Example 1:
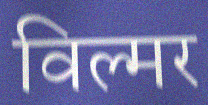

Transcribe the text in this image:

विल्मर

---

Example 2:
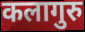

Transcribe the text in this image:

कलागुरु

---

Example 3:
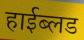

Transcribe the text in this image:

हाईब्लड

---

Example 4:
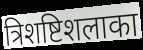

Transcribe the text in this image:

त्रिशष्टिशलाका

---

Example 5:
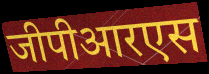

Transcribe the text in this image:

जीपीआरएस